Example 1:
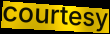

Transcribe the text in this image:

courtesy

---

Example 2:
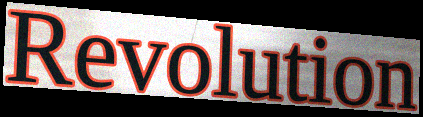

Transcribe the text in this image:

Revolution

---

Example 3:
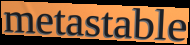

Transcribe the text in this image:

metastable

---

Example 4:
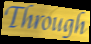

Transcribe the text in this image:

Through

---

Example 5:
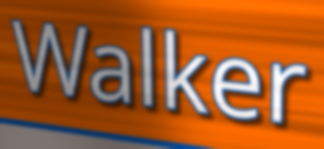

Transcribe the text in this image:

Walker